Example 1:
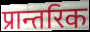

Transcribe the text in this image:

प्रान्तरिक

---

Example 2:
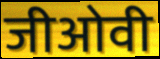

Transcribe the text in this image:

जीओवी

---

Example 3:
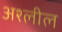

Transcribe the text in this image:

अश्लील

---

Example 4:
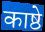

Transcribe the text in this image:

काष्ठे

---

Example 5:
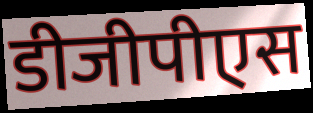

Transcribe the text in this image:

डीजीपीएस